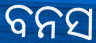
ବନସ